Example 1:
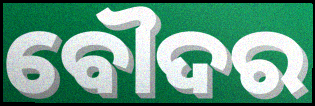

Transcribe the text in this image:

ବୌଦର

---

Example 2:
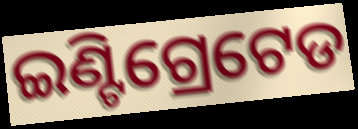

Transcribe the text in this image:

ଇଣ୍ଟିଗ୍ରେଟେଡ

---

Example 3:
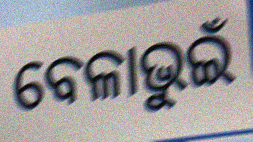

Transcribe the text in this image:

ବେଳାଭୁଇଁ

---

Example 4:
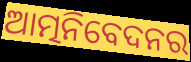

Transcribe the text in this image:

ଆତ୍ମନିବେଦନର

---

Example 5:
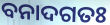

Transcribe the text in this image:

ବନାଦଗତଃ